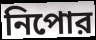
নিপোর